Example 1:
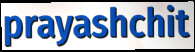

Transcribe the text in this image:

prayashchit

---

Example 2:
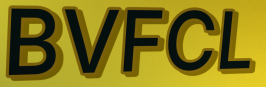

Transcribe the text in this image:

BVFCL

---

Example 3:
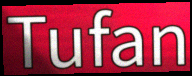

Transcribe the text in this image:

Tufan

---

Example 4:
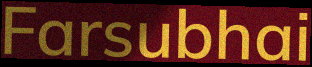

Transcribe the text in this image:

Farsubhai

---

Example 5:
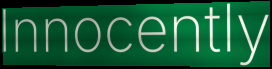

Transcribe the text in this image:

Innocently